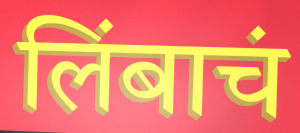
लिंबाचं